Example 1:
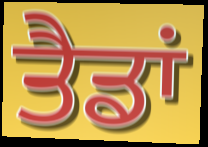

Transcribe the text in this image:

ਤੈਡਾਂ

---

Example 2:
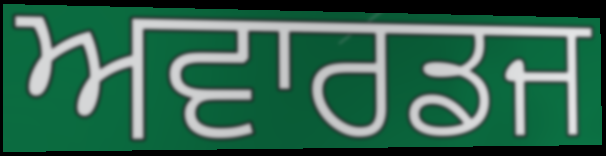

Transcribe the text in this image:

ਅਵਾਰਡਜ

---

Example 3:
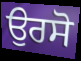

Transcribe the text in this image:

ਉਰਸੋ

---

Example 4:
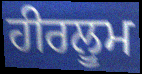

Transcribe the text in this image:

ਹੀਰਲੂਮ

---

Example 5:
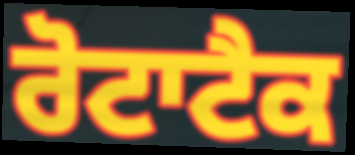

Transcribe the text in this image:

ਰੋਟਾਟੈਕ